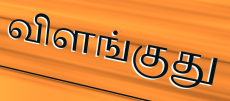
விளங்குது